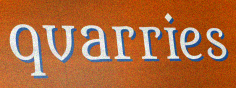
quarries